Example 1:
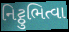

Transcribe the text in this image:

નિટ્ઠુભિત્વા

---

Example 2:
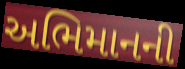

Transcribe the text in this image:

અભિમાનની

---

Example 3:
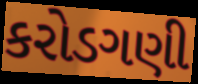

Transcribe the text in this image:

કરોડગણી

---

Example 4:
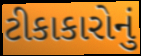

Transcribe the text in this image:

ટીકાકારોનું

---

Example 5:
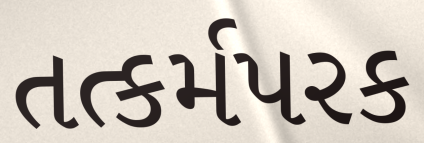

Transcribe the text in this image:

તત્કર્મપરક